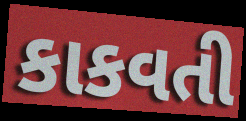
કાકવતી